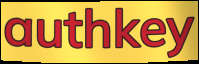
authkey